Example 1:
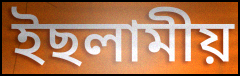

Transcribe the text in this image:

ইছলামীয়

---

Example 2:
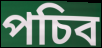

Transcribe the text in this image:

পচিব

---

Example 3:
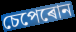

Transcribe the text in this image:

চেপেৰোন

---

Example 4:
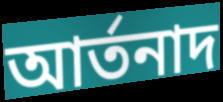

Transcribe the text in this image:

আৰ্তনাদ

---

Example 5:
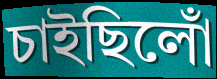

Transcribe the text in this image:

চাইছিলোঁ